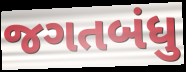
જગતબંધુ